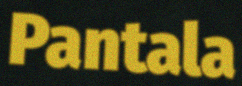
Pantala